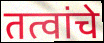
तत्वांचे